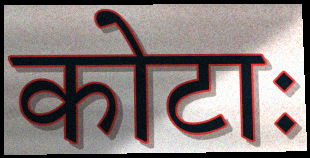
कोटाः